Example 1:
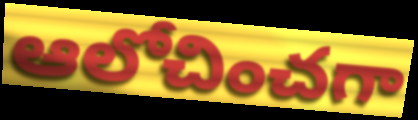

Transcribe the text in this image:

ఆలోచించగా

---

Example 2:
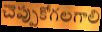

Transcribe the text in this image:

చెప్పుకోగలగాలి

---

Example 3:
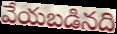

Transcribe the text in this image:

వేయబడినది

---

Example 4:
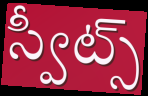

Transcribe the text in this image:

స్వీట్స్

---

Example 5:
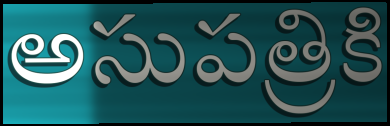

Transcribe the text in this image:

అసుపత్రికి